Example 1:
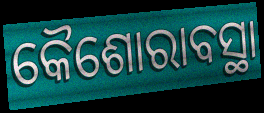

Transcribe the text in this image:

କୈଶୋରାବସ୍ଥା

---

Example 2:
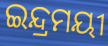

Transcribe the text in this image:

ଇନ୍ଦ୍ରମୟୀ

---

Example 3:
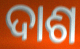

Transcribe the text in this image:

ଦାଶ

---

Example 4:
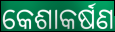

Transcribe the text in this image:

କେଶାକର୍ଷଣ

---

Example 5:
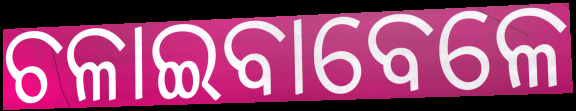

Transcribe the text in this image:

ଚଳାଇବାବେଳେ